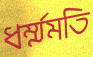
ধর্ম্মমতি